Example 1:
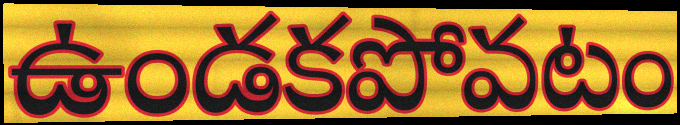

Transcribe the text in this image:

ఉండకపోవటం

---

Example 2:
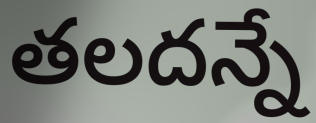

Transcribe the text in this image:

తలదన్నే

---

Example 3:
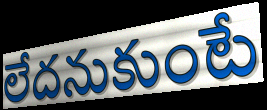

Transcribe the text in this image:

లేదనుకుంటే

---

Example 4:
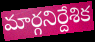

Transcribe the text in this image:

మార్గనిర్దేశిక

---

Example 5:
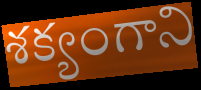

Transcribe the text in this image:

శక్యంగాని